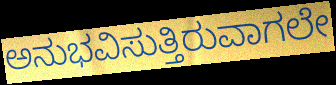
ಅನುಭವಿಸುತ್ತಿರುವಾಗಲೇ